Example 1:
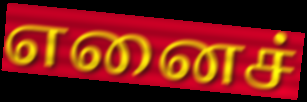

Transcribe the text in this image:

எனைச்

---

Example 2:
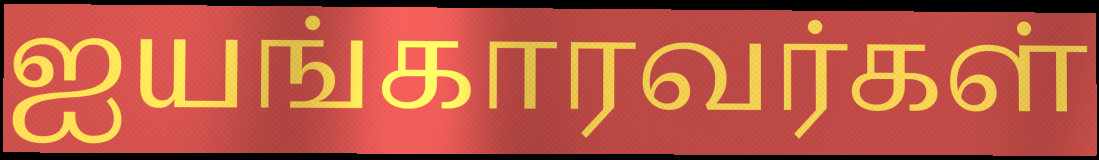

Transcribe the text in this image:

ஐயங்காரவர்கள்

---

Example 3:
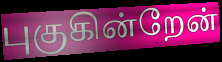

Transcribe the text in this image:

புகுகின்றேன்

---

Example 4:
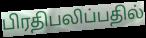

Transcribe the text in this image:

பிரதிபலிப்பதில்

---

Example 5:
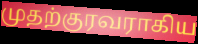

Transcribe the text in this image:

முதற்குரவராகிய